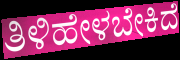
ತಿಳಿಹೇಳಬೇಕಿದೆ